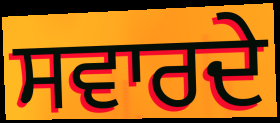
ਸਵਾਰਦੇ